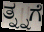
ತ್ನ್ನಗೆ